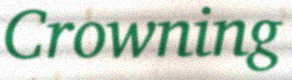
Crowning